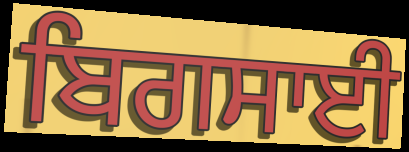
ਬਿਗਸਾਈ